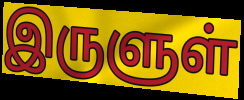
இருளுள்